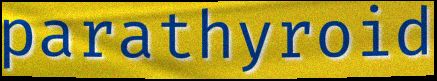
parathyroid